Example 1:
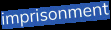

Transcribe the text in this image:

imprisonment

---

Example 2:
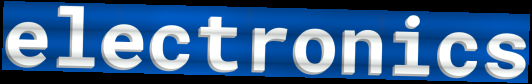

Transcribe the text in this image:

electronics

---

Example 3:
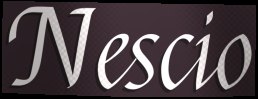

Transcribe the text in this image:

Nescio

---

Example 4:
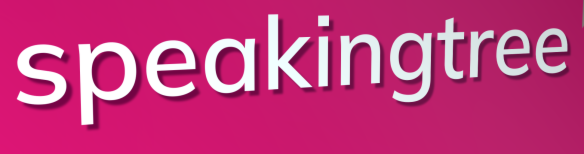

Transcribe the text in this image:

speakingtree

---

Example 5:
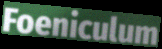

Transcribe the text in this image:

Foeniculum